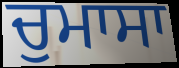
ਚੁਮਾਸਾ